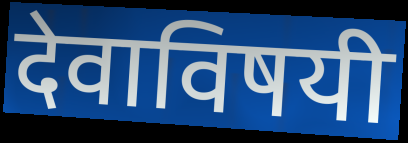
देवाविषयी